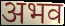
अभव